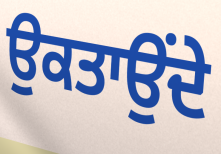
ਉਕਤਾਉਂਦੇ